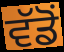
ਵੱਡੋਂ